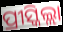
ପ୍ରୀସ୍କିଲ୍ଲା